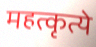
महत्कृत्ये